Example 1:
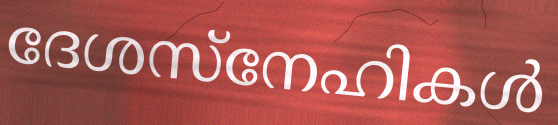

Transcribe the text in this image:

ദേശസ്നേഹികൾ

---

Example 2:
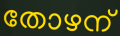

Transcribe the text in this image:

തോഴന്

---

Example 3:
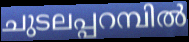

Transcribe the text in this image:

ചുടലപ്പറമ്പിൽ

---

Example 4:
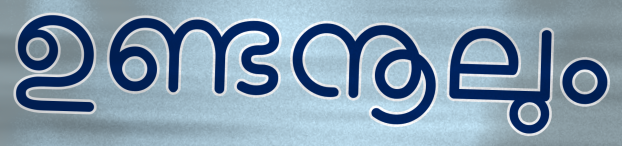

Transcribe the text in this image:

ഉണ്ടനൂലും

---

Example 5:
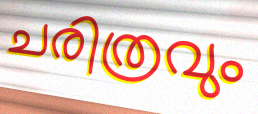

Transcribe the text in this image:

ചരിത്രവും